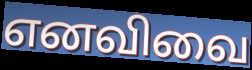
எனவிவை